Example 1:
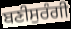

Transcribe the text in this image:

ਬਣੀਸੁਰੰਗੀ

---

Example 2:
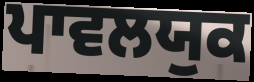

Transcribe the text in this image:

ਪਾਵਲਯੁਕ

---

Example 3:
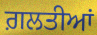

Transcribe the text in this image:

ਗ਼ਲਤੀਆਂ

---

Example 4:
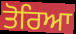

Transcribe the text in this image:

ਤੋਰਿਆ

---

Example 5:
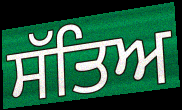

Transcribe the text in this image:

ਸੱਤਿਅ